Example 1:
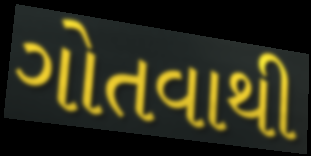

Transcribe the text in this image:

ગોતવાથી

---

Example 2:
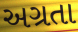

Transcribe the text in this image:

અગ્રતા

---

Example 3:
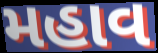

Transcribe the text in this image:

મહાવ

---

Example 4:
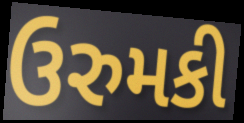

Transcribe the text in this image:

ઉરુમકી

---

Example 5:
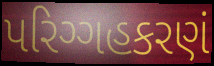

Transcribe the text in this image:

પરિગ્ગહકરણં